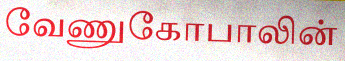
வேணுகோபாலின்